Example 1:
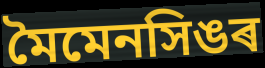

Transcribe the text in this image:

মৈমেনসিঙৰ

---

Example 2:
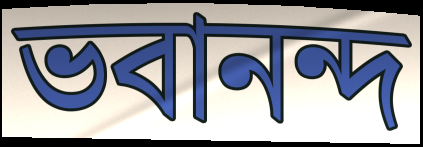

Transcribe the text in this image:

ভবানন্দ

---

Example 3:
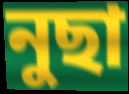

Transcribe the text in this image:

নুছা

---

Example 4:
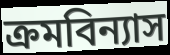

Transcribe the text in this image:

ক্ৰমবিন্যাস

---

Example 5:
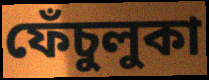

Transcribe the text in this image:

ফেঁচুলুকা